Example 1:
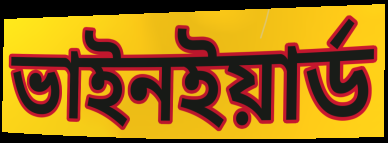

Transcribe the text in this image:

ভাইনইয়ার্ড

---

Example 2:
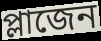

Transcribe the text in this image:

প্লাজেন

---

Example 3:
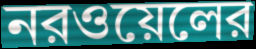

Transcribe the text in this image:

নরওয়েলের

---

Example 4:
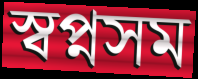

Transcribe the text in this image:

স্বপ্নসম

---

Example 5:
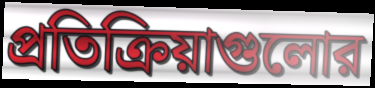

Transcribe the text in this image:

প্রতিক্রিয়াগুলোর